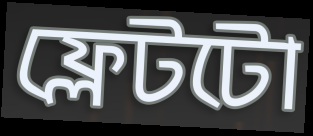
ফ্লেটটো